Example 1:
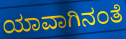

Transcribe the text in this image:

ಯಾವಾಗಿನಂತೆ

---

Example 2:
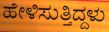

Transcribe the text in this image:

ಹೇಳಿಸುತ್ತಿದ್ದಳು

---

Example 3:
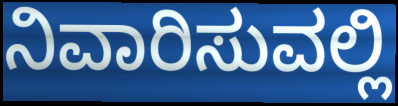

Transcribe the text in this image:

ನಿವಾರಿಸುವಲ್ಲಿ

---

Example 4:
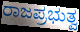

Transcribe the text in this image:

ರಾಜಪ್ರಭುತ್ವ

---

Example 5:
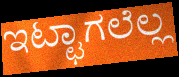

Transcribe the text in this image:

ಇಟ್ಟಾಗಲೆಲ್ಲ